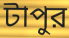
টাপুর